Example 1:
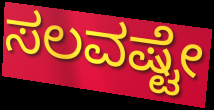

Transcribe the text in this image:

ಸಲವಷ್ಟೇ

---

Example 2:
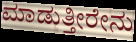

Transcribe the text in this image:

ಮಾಡುತ್ತೀರೇನು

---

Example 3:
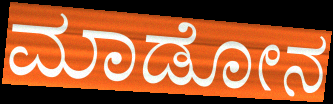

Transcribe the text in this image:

ಮಾಡೋನ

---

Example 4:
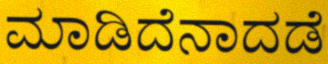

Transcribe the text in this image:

ಮಾಡಿದೆನಾದಡೆ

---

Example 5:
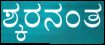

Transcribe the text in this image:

ಶ್ಕರನಂತ